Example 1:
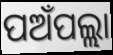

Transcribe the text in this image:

ପଅଁପଲ୍ଲା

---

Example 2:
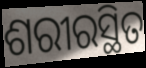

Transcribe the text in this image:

ଶରୀରସ୍ଥିତ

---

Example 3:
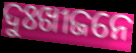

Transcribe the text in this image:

ଦୁଃଖୀଜନେ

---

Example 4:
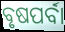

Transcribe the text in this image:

ବୃଷପର୍ବା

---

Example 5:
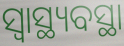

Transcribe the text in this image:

ସ୍ୱାସ୍ଥ୍ୟବସ୍ଥା